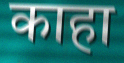
काहा